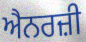
ਐਨਰਜ਼ੀ